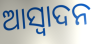
ଆସ୍ଵାଦନ